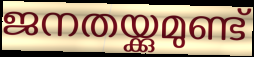
ജനതയ്ക്കുമുണ്ട്